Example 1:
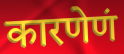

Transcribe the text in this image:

कारणेणं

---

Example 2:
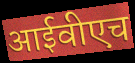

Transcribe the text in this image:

आईवीएच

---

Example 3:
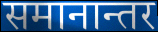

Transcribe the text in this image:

समानान्तर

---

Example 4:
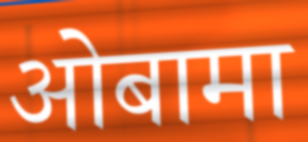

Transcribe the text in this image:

ओबामा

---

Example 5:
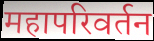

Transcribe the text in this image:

महापरिवर्तन